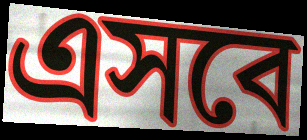
এসবে